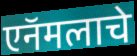
एनॅमलाचे